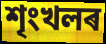
শৃংখলৰ